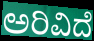
ಅರಿವಿದೆ